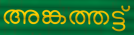
അങ്കത്തട്ട്